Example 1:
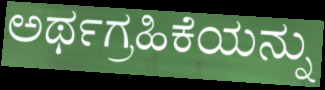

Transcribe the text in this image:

ಅರ್ಥಗ್ರಹಿಕೆಯನ್ನು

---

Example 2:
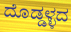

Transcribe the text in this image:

ದೊಡ್ಡಳ್ಳದ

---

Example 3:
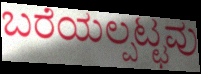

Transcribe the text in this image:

ಬರೆಯಲ್ಪಟ್ಟವು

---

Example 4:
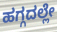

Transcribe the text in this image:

ಹಗ್ಗದಲ್ಲೇ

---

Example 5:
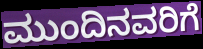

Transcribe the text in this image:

ಮುಂದಿನವರಿಗೆ